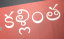
కళ్లింత